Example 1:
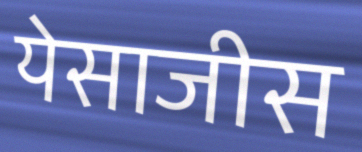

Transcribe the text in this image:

येसाजीस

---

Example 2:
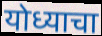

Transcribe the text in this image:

योध्याचा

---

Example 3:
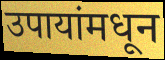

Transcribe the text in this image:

उपायांमधून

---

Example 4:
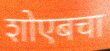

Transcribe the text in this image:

शोएबचा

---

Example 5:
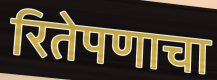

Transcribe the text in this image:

रितेपणाचा